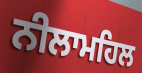
ਨੀਲਾਮਹਿਲ